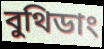
বুথিডাং